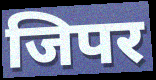
जिपर